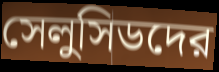
সেলুসিডদের